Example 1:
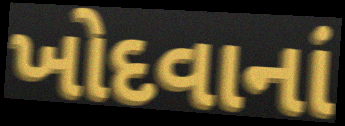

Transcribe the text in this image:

ખોદવાનાં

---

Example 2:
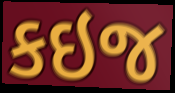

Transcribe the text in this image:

કઇજ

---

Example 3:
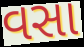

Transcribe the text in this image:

વસા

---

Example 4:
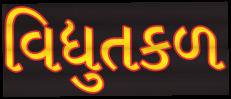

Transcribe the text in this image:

વિદ્યુતકળ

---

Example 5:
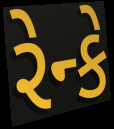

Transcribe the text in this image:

રેન્કે